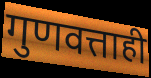
गुणवत्ताही